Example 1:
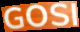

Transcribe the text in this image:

GOSI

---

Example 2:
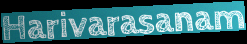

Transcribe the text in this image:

Harivarasanam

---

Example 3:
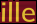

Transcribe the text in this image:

ille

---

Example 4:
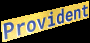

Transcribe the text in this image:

Provident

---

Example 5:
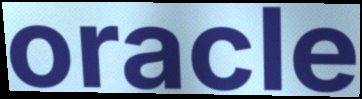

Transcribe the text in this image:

oracle